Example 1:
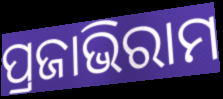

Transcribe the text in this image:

ପ୍ରଜାଭିରାମ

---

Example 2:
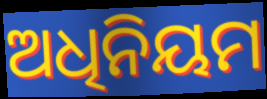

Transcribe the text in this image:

ଅଧିନିୟମ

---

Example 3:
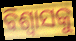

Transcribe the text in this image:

ବିଶ୍ୱାସକୁ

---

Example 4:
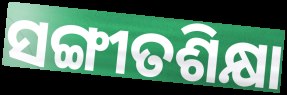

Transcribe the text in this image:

ସଙ୍ଗୀତଶିକ୍ଷା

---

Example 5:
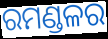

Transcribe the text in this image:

ରମଣ୍ଡଳର